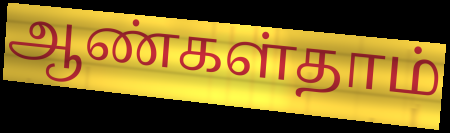
ஆண்கள்தாம்